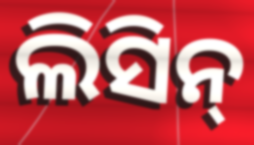
ଲିସିନ୍